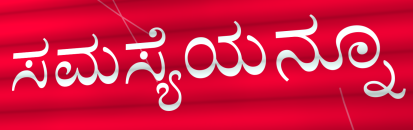
ಸಮಸ್ಯೆಯನ್ನೂ